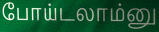
போய்டலாம்னு